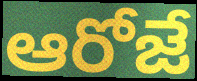
ఆరోజే